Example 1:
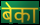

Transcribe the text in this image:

बेका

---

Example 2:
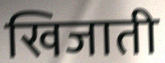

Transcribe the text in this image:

खिजाती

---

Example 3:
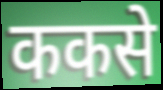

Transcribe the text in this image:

ककसे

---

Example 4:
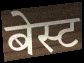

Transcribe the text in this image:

बेस्‍ट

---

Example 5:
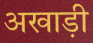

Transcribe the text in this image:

अखाड़ी